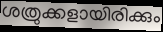
ശത്രുക്കളായിരിക്കും